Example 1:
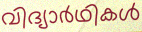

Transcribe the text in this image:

വിദ്യാർഥികൾ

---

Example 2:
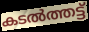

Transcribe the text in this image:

കടൽത്തട്ട്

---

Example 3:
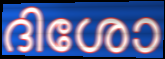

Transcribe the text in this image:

ദിശോ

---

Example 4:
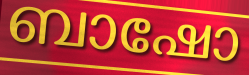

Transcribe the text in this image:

ബാഷോ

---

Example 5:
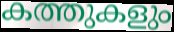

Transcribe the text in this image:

കത്തുകളും